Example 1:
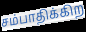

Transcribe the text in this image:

சம்பாதிக்கிற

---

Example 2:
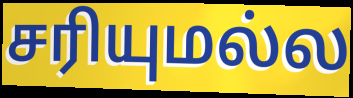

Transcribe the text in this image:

சரியுமல்ல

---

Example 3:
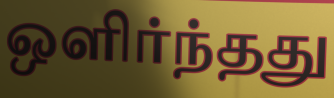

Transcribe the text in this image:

ஒளிர்ந்தது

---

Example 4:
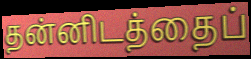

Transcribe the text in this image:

தன்னிடத்தைப்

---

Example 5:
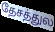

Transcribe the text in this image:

தேசத்துல